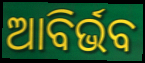
ଆବିର୍ଭବ